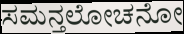
ಸಮನ್ತಲೋಚನೋ